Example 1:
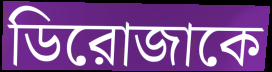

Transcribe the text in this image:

ডিরোজাকে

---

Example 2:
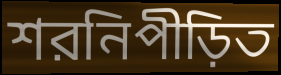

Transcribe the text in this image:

শরনিপীড়িত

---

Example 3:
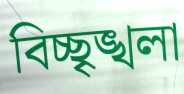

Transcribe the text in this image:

বিচ্ছৃঙ্খলা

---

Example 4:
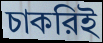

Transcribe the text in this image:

চাকরিই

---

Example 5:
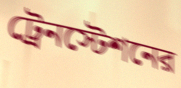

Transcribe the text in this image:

ট্রেনস্টেশনের